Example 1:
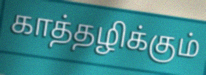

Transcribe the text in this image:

காத்தழிக்கும்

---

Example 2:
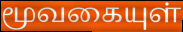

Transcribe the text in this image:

மூவகையுள்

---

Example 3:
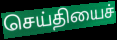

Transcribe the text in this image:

செய்தியைச்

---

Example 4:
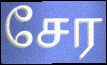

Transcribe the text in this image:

சேர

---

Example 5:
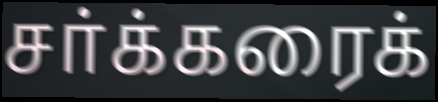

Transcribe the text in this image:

சர்க்கரைக்